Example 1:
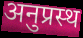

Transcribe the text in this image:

अनुप्रस्थ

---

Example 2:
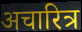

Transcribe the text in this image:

अचारित्र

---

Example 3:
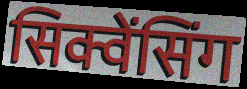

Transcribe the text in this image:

सिक्वेंसिंग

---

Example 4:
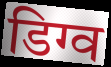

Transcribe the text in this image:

डिग्व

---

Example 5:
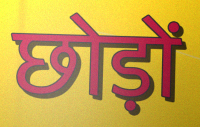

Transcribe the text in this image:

छोड़ों